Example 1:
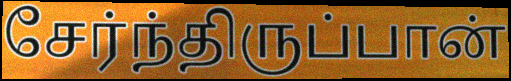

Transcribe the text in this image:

சேர்ந்திருப்பான்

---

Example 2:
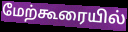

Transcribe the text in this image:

மேற்கூரையில்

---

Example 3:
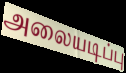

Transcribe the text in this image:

அலையடிப்பு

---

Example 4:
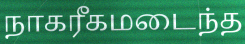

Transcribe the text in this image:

நாகரீகமடைந்த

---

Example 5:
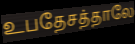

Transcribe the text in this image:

உபதேசத்தாலே